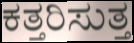
ಕತ್ತರಿಸುತ್ತ